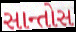
સાન્તોસ